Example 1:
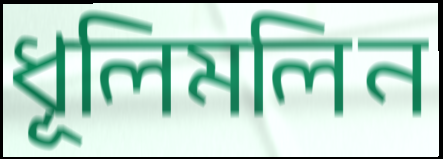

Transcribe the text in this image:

ধূলিমলিন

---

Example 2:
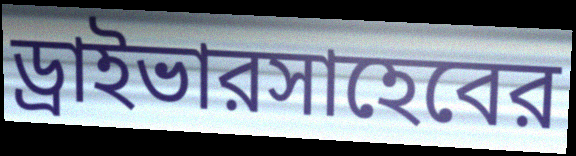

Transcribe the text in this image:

ড্রাইভারসাহেবের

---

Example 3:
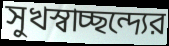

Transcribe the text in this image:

সুখস্বাচ্ছন্দ্যের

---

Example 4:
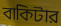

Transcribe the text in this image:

বাকিটার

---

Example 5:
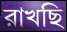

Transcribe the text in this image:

রাখছি